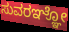
ಸುವರಞ್ಞೋ